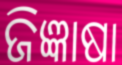
ଜିଜ୍ଞାଷା